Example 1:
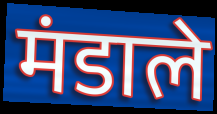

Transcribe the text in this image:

मंडाले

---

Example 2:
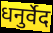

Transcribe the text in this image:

धनुर्वेद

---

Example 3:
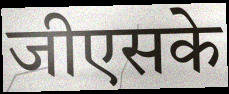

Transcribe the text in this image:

जीएसके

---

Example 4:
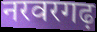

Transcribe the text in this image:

नरवरगढ़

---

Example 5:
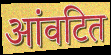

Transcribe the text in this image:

आंवटित